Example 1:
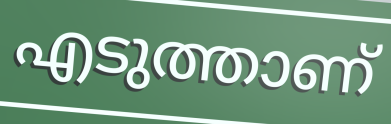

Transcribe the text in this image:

എടുത്താണ്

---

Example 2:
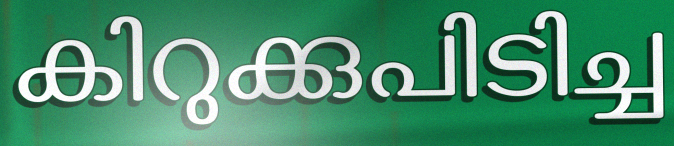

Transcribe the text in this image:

കിറുക്കുപിടിച്ച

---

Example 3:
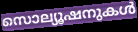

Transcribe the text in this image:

സൊല്യൂഷനുകൾ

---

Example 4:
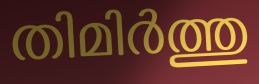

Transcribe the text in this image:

തിമിർത്തു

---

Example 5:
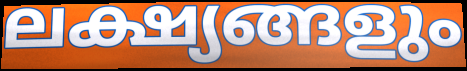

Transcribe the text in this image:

ലക്ഷ്യങ്ങളും